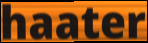
haater